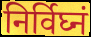
निर्विघ्नं